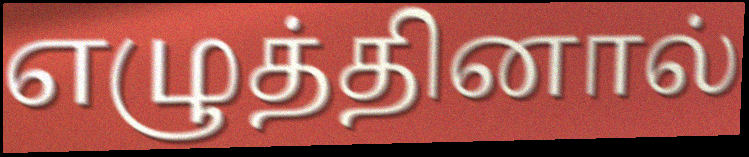
எழுத்தினால்